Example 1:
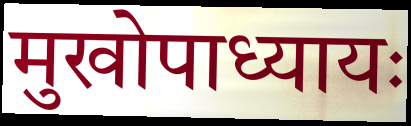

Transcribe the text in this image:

मुखोपाध्यायः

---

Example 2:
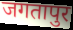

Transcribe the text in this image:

जगतापुर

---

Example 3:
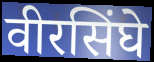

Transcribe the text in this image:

वीरसिंघे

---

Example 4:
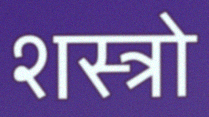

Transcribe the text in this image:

शस्त्रो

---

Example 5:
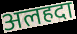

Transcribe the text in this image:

अलहदा